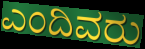
ಎಂದಿವರು